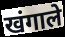
खंगाले